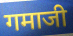
गमाजी